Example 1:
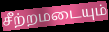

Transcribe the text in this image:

சீற்றமடையும்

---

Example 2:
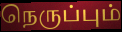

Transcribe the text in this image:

நெருப்பும்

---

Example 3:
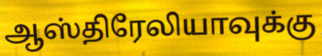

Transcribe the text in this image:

ஆஸ்திரேலியாவுக்கு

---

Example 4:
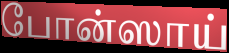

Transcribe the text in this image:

போன்ஸாய்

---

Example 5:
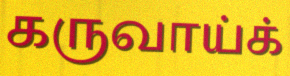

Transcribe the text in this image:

கருவாய்க்